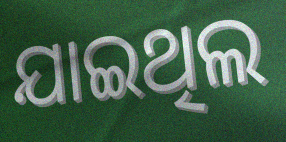
ଯାଇଥିଲ